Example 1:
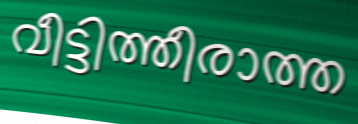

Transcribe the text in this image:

വീട്ടിത്തീരാത്ത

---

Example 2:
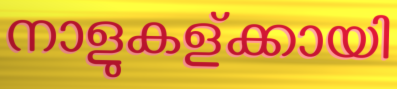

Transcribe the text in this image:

നാളുകള്ക്കായി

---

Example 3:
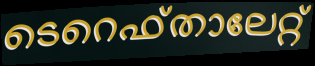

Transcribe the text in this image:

ടെറെഫ്താലേറ്റ്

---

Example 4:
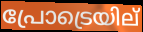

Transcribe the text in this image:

പ്രോട്രെയില്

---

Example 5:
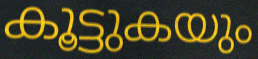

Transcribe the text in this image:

കൂട്ടുകയും